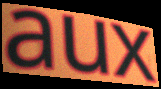
aux